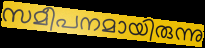
സമീപനമായിരുന്നു